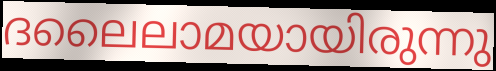
ദലൈലാമയായിരുന്നു